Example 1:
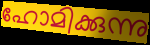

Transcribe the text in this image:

ഹോമിക്കുന്നു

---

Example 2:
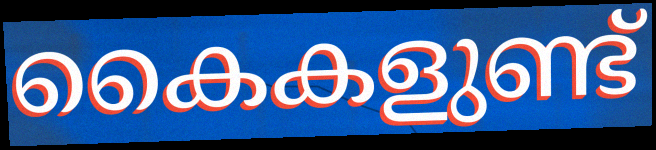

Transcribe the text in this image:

കൈകളുണ്ട്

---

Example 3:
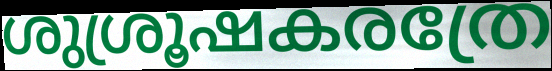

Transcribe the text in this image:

ശുശ്രൂഷകരത്രേ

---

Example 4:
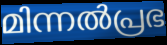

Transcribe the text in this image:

മിന്നൽപ്രഭ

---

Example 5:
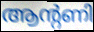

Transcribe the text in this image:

ആന്റണി